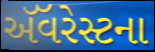
ઍૅવરેસ્ટના